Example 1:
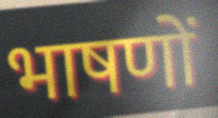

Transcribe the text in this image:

भाषणों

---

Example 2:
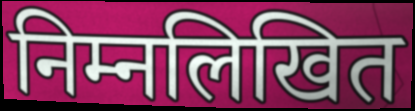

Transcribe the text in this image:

निम्नलिखित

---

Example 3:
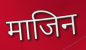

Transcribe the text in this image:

माजिन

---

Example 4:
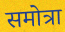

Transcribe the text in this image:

समोत्रा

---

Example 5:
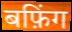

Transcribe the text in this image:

बफ़िंग